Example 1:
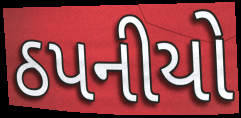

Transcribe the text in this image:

ઠપનીયો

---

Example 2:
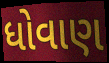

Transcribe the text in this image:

ધોવાણ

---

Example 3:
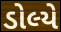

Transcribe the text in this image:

ડોલ્યે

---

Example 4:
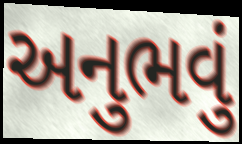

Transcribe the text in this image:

અનુભવું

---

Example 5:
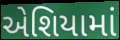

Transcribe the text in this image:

એશિયામાં